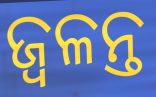
ଜ୍ଵଳନ୍ତ